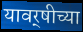
यावर्षीच्या